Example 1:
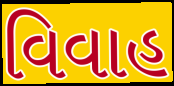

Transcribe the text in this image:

વિવાહ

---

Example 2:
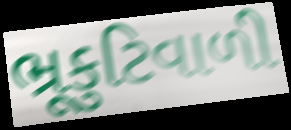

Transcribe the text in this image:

ભ્રૂકુટિવાળી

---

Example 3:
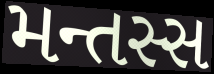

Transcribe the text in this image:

મન્તસ્સ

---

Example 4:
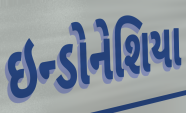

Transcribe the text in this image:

ઇન્ડોનેશિયા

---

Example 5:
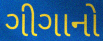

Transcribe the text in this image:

ગીગાનો